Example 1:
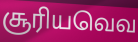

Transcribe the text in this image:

சூரியவெவ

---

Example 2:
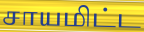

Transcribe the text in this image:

சாயமிட்ட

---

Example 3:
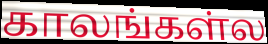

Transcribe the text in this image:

காலங்கள்ல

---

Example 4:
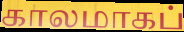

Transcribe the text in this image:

காலமாகப்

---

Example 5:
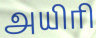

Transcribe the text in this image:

அயிரி